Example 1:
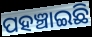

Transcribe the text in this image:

ପହଞ୍ଚାଇଛି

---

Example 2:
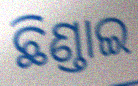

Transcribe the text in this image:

ଛିଣ୍ଡାଇ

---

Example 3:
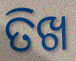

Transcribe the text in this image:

ତିଖ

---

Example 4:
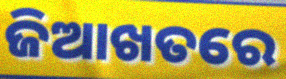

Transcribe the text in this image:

ଜିଆଖତରେ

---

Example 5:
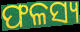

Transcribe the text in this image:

ଫଳସ୍ୟ